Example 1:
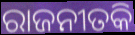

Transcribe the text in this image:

ରାଜନୀତକି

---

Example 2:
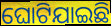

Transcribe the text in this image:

ଘୋଟିଯାଇଛି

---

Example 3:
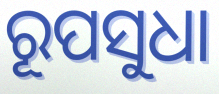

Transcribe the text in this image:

ରୂପସୁଧା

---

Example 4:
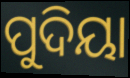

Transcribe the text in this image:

ପୁଦିୟା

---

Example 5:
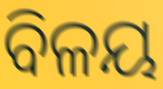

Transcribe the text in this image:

ବିଳୟ